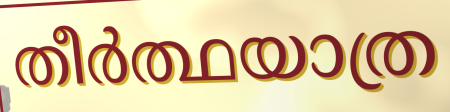
തീർത്ഥയാത്ര